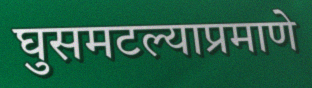
घुसमटल्याप्रमाणे